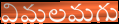
విమలమగు